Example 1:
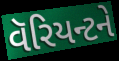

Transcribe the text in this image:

વૅરિયન્ટને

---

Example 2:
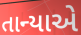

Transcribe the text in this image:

તાન્યાએ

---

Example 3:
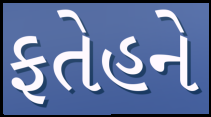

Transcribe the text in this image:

ફતેહને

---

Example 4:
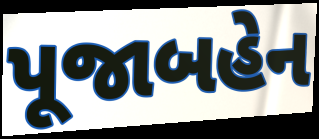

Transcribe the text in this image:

પૂજાબહેન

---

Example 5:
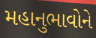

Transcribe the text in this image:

મહાનુભાવોને